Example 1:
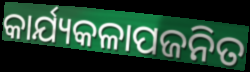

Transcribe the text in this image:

କାର୍ଯ୍ୟକଳାପଜନିତ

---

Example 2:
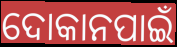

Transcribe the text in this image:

ଦୋକାନପାଇଁ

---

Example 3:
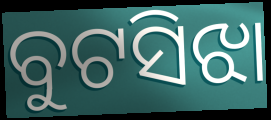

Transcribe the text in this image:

ବୁଟସିଝା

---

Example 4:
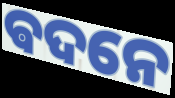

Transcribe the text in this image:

ଵଦନେ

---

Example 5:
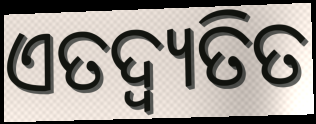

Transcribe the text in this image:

ଏତଦ୍ବ୍ୟତିତ